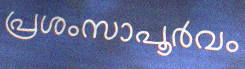
പ്രശംസാപൂർവം